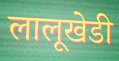
लालूखेडी